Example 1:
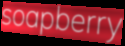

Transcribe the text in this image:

soapberry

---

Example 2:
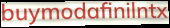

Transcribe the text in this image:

buymodafinilntx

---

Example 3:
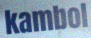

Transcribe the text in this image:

kambol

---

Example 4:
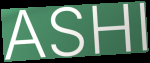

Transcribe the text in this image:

ASHI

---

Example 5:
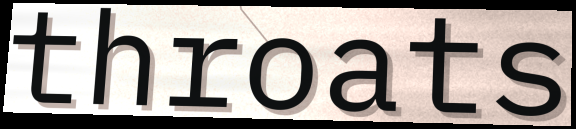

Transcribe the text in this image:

throats